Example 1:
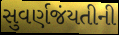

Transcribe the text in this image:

સુવર્ણજંયતીની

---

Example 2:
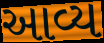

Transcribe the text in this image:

આવ્ય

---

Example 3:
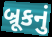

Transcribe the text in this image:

બ્રૂકનું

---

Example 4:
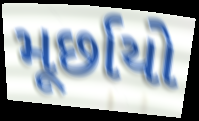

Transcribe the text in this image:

મૂર્છાયો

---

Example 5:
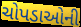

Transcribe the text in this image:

ચોપડાઓની